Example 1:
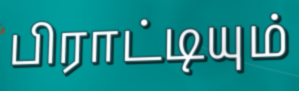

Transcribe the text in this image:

பிராட்டியும்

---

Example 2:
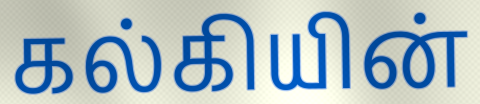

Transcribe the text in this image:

கல்கியின்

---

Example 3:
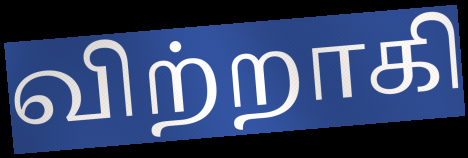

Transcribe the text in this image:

விற்றாகி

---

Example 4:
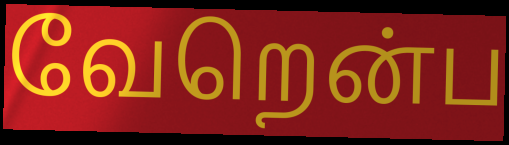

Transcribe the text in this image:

வேறென்ப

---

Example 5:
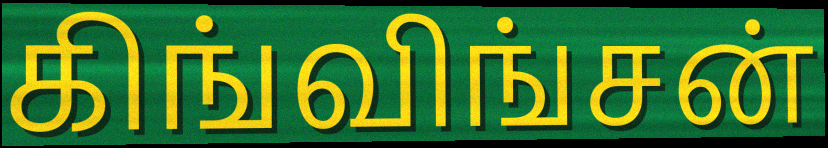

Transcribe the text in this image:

கிங்விங்சன்